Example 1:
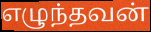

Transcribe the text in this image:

எழுந்தவன்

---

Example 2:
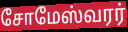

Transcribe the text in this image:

சோமேஸ்வரர்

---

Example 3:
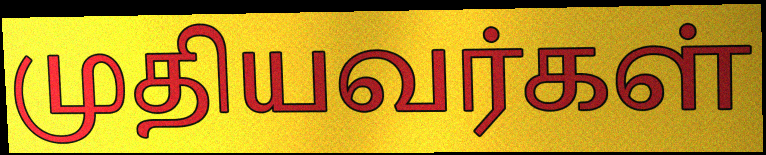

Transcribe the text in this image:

முதியவர்கள்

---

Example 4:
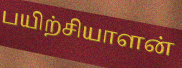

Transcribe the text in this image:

பயிற்சியாளன்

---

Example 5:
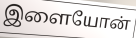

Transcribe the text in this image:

இளையோன்